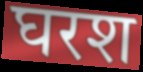
घरश